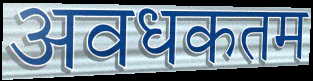
अवधकतम